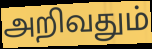
அறிவதும்